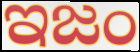
ఇజం